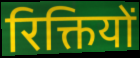
रिक्तियों